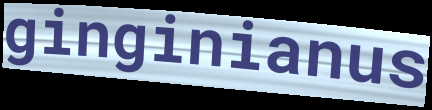
ginginianus